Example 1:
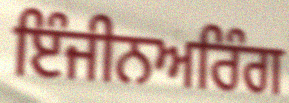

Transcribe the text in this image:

ਇੰਜੀਨਅਰਿੰਗ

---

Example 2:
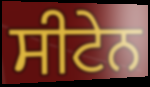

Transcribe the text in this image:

ਸੀਟੇਨ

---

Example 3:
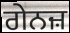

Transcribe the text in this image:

ਗੇਨਜ਼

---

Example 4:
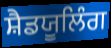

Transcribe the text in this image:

ਸ਼ੈਡਯੂਲਿੰਗ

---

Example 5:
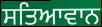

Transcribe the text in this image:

ਸਤਿਆਵਾਨ